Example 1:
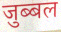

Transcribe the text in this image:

जुब्बल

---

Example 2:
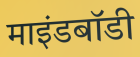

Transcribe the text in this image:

माइंडबॉडी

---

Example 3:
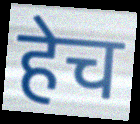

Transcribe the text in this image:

हेच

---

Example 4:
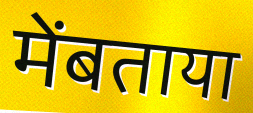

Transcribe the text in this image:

मेंबताया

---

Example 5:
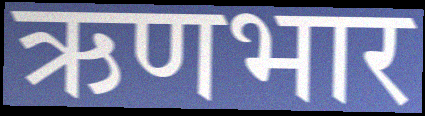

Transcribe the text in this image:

ऋणभार